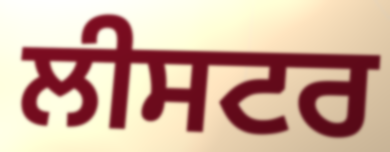
ਲੀਸਟਰ